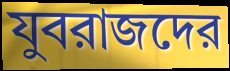
যুবরাজদের